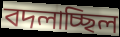
বদলাচ্ছিল